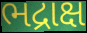
ભદ્રાક્ષ